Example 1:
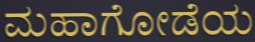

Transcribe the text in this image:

ಮಹಾಗೋಡೆಯ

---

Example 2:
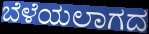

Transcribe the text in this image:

ಬೆಳೆಯಲಾಗದ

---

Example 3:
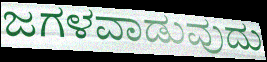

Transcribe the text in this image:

ಜಗಳವಾಡುವುದು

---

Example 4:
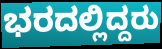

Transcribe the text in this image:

ಭರದಲ್ಲಿದ್ದರು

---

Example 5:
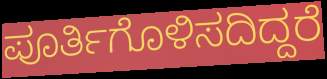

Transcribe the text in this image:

ಪೂರ್ತಿಗೊಳಿಸದಿದ್ದರೆ